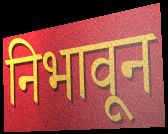
निभावून